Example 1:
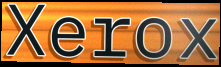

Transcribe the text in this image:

Xerox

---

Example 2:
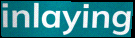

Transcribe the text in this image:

inlaying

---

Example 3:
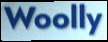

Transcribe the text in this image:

Woolly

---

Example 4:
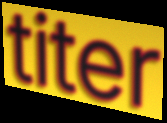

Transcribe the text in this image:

titer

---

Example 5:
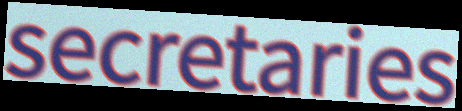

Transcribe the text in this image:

secretaries